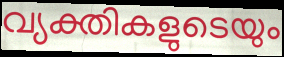
വ്യക്തികളുടെയും